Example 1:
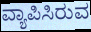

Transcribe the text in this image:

ವ್ಯಾಪಿಸಿರುವ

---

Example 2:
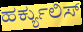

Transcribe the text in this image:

ಹರ್ಕ್ಯುಲಿಸ್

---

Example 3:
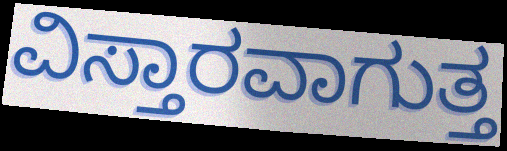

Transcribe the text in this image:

ವಿಸ್ತಾರವಾಗುತ್ತ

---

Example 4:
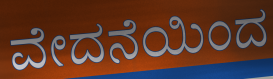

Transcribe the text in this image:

ವೇದನೆಯಿಂದ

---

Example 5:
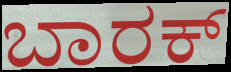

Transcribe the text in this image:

ಬಾರಕ್